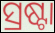
ସ୍ରଷ୍ଟା